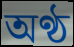
অণ্ঠ